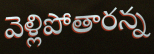
వెళ్లిపోతారన్న